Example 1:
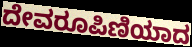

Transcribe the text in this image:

ದೇವರೂಪಿಣಿಯಾದ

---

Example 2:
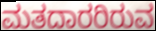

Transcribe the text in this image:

ಮತದಾರರಿರುವ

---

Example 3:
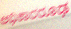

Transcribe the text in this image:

ಅಧಿಕಾರರೂಢ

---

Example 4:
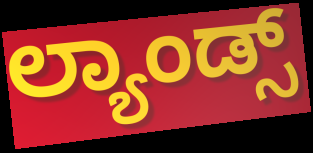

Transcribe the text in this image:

ಲ್ಯಾಂಡ್ಸ್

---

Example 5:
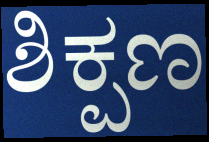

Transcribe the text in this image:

ಶಿಕ್ಪಣ